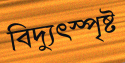
বিদ্যুৎস্পৃষ্ট